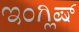
ಇಂಗ್ಲಿಷ್